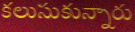
కలుసుకున్నారు